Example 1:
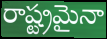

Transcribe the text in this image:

రాష్ట్రమైనా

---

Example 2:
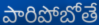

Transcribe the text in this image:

పారిపోబోతే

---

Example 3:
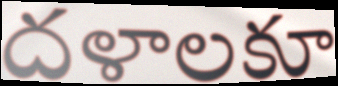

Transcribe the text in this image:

దళాలకూ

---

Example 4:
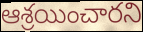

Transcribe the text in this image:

ఆశ్రయించారని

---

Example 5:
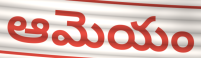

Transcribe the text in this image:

ఆమెయం